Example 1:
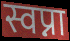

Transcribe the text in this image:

स्वप्ना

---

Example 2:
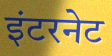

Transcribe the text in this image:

इंटरनेट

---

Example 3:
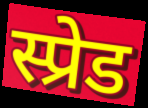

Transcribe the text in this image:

स्प्रेड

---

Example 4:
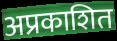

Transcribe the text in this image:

अप्रकाशित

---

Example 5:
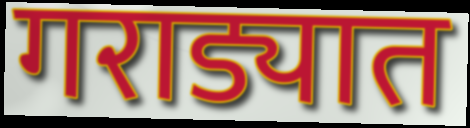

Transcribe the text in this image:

गराड्यात